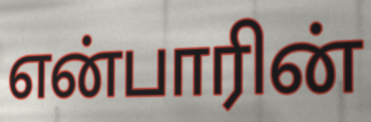
என்பாரின்